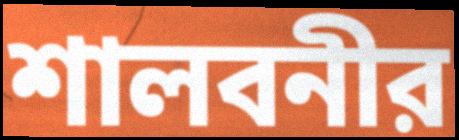
শালবনীর